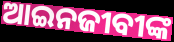
ଆଇନଜୀବୀଙ୍କ